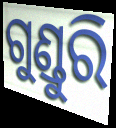
ଗୁଣ୍ଡୁରି